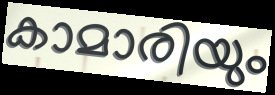
കാമാരിയും